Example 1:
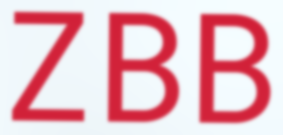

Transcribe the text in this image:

ZBB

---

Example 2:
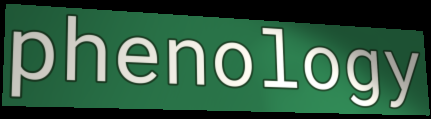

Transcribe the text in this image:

phenology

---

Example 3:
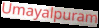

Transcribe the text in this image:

Umayalpuram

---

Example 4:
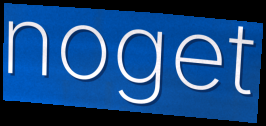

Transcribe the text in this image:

noget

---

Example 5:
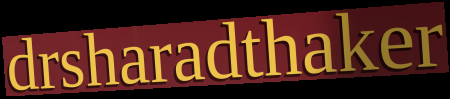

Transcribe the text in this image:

drsharadthaker